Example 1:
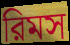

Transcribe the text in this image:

রিমস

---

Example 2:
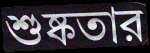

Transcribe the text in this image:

শুষ্কতার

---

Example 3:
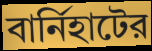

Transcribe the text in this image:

বার্নিহাটের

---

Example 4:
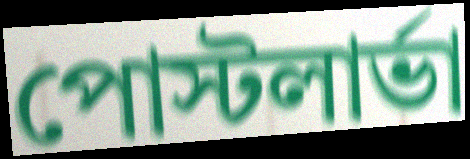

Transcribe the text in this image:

পোস্টলার্ভা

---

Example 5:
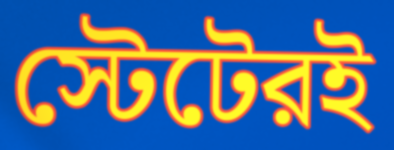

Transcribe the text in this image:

স্টেটেরই